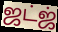
ஜட்ஜ்